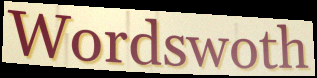
Wordswoth